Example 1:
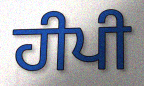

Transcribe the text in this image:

ਹੀਪੀ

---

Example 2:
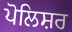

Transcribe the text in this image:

ਪੋਲਿਸ਼ਰ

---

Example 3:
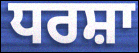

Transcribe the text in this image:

ਧਰਸ਼ਾ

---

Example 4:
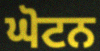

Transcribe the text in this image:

ਘੋਟਨ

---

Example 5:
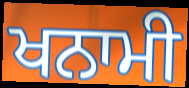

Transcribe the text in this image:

ਖਨਾਮੀ